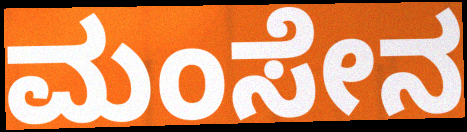
ಮಂಸೇನ